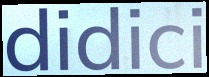
didici